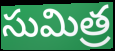
సుమిత్ర